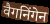
वैगनिंगेन